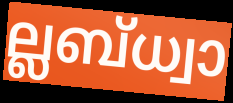
ല്ലബ്ധ്വാ